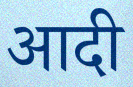
आदी